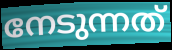
നേടുന്നത്